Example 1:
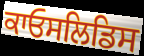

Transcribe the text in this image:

ਕਾਓਸਲਿਡਿਸ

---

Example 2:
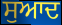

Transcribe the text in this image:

ਸੁਆਦ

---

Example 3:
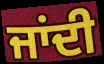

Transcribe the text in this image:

ਜਾਂਦੀ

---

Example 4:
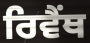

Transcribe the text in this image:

ਰਿਵੈਂਥ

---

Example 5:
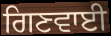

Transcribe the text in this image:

ਗਿਣਵਾਈ